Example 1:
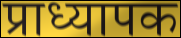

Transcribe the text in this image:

प्राध्यापक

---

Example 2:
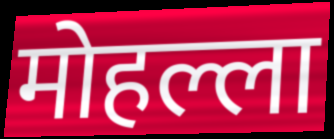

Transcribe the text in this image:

मोहल्‍ला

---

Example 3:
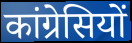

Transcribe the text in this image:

कांग्रेसियों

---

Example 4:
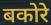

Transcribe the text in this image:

बकोरे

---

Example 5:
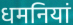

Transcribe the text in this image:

धमनियां